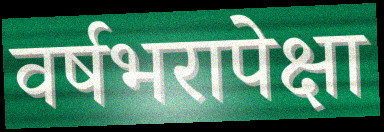
वर्षभरापेक्षा